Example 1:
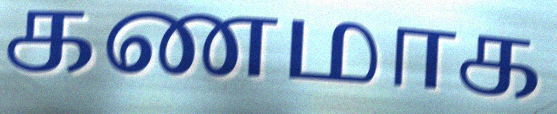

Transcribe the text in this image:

கணமாக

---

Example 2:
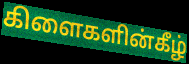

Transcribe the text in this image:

கிளைகளின்கீழ்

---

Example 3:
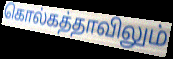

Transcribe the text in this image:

கொல்கத்தாவிலும்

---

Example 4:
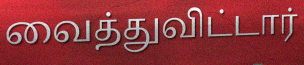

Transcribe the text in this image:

வைத்துவிட்டார்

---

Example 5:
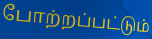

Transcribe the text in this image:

போற்றப்பட்டும்